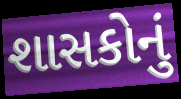
શાસકોનું